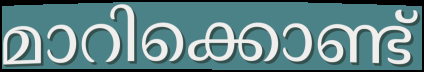
മാറിക്കൊണ്ട്